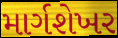
માર્ગશેખર